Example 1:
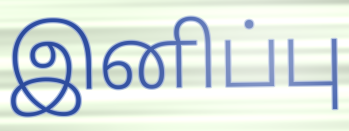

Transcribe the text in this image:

இனிப்பு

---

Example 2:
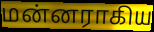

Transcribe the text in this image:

மன்னராகிய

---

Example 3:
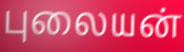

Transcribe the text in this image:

புலையன்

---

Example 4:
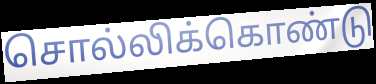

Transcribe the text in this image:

சொல்லிக்கொண்டு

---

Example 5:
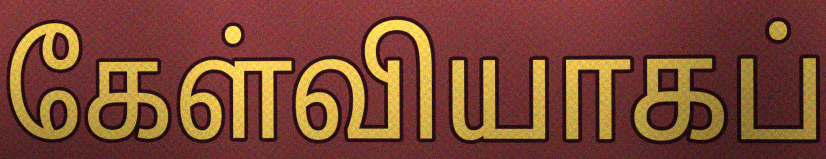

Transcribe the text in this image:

கேள்வியாகப்